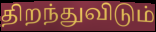
திறந்துவிடும்